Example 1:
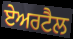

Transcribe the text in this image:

ਏਅਰਟੈਲ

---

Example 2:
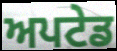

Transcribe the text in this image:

ਅਪਟੇਡ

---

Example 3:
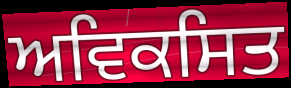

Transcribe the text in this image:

ਅਵਿਕਸਿਤ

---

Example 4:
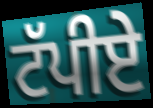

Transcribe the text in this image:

ਟੱਪੀਏ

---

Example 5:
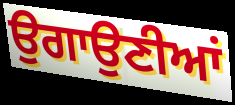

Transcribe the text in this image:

ਉਗਾਉਣੀਆਂ